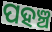
ପହଞ୍ଚ